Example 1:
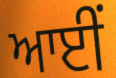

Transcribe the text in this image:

ਆਈਂ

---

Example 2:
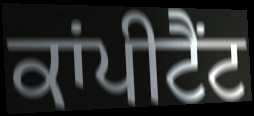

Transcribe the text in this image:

ਕਾਂਪੀਟੈਂਟ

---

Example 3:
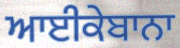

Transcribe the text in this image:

ਆਈਕੇਬਾਨਾ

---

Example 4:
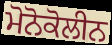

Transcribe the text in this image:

ਮੋਨੋਕੋਲੀਨ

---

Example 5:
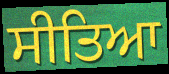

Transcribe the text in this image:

ਸੀਤਿਆ